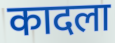
कादला